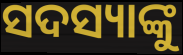
ସଦସ୍ୟାଙ୍କୁ